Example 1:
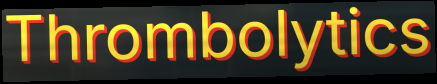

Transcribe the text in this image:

Thrombolytics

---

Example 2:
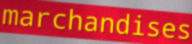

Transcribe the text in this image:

marchandises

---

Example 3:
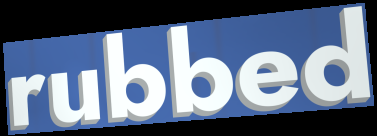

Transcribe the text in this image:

rubbed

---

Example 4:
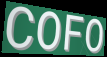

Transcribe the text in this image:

COFO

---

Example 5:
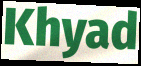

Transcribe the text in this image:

Khyad